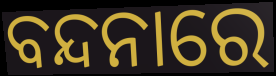
ବନ୍ଦନାରେ